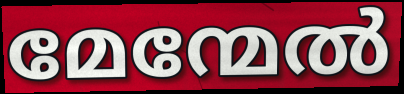
മേന്മേൽ